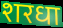
शरधा